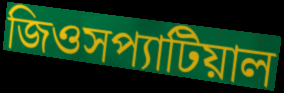
জিওসপ্যাটিয়াল